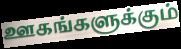
ஊகங்களுக்கும்